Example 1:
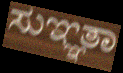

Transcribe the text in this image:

ಸುಞ್ಞತಾ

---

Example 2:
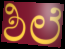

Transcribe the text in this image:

ಶಿಲೆ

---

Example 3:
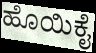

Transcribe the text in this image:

ಹೊಯಿಕೈ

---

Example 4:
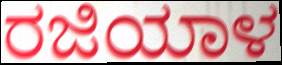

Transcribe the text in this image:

ರಜಿಯಾಳ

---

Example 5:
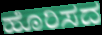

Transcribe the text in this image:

ಹೊರಿಸದ